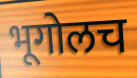
भूगोलच